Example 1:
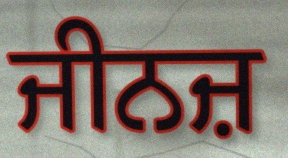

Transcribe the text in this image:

ਜੀਨਜ਼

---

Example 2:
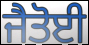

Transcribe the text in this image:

ਜੈਤੋਈ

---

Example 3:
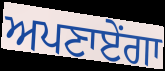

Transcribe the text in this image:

ਅਪਣਾਏਂਗਾ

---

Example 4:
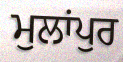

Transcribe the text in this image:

ਮੁਲਾਂਪੁਰ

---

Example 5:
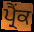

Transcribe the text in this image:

ਪ੍ਰੈਂਕ